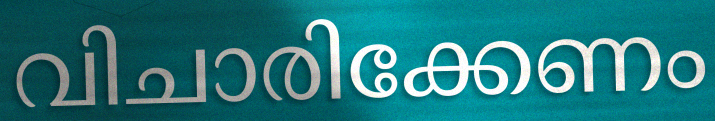
വിചാരിക്കേണം